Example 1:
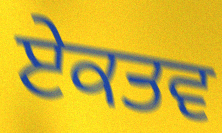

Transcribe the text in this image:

ਏਕਤਵ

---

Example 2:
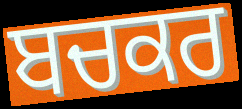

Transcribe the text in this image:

ਬਚਕਰ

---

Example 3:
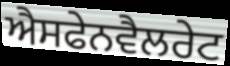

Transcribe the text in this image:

ਐਸਫੇਨਵੈਲਰੇਟ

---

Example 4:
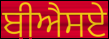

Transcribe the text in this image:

ਬੀਐਸਏ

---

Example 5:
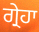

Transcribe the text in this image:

ਗ੍ਰੇਹਾ